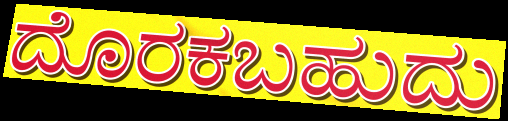
ದೊರಕಬಹುದು